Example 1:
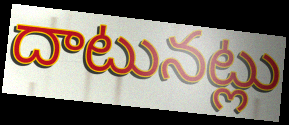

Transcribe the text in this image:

దాటునట్లు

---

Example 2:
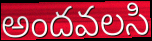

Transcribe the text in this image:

అందవలసి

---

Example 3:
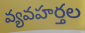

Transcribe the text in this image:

వ్యవహర్తల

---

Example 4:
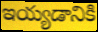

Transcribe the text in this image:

ఇయ్యడానికి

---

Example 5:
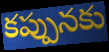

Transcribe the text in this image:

కప్పునకు